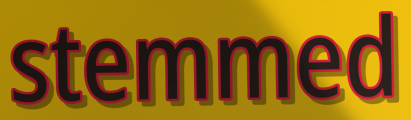
stemmed